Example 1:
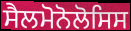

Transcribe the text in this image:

ਸੈਲਮੋਨੋਲੋਸਿਸ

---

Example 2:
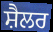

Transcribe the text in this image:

ਸ਼ੈਲਰ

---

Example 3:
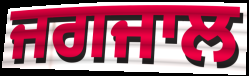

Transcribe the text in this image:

ਜਗਜਾਲ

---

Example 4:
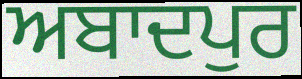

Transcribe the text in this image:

ਅਬਾਦਪੁਰ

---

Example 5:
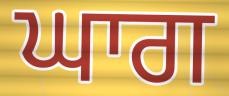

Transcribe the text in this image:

ਘਾਗ